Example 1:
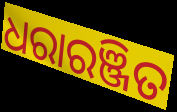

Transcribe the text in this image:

ଧରାରଞ୍ଜିତ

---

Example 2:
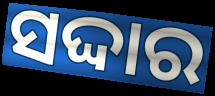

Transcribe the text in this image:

ସଦ୍ଦାର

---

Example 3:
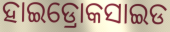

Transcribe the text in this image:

ହାଇଡ୍ରୋକସାଇଡ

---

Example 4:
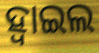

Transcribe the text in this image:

ହ୍ବାଇଲ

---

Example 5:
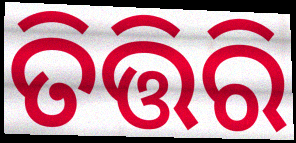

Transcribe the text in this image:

ତିତ୍ତିରି